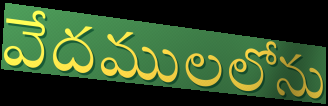
వేదములలోను